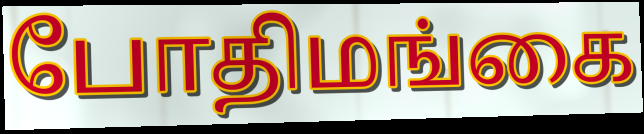
போதிமங்கை